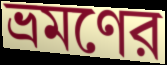
ভ্রমণের